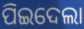
ପିଇଦେଲା